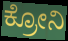
ಕ್ರೋನಿ